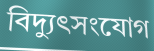
বিদ্যুৎসংযোগ